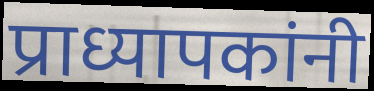
प्राध्यापकांनी